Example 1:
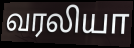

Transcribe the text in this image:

வரலியா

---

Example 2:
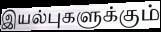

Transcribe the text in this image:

இயல்புகளுக்கும்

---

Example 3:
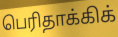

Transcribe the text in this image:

பெரிதாக்கிக்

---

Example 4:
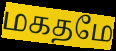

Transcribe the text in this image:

மகதமே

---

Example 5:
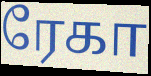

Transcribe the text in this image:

ரேகா